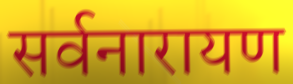
सर्वनारायण